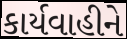
કાર્યવાહીને